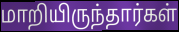
மாறியிருந்தார்கள்